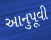
આનુપૂવી